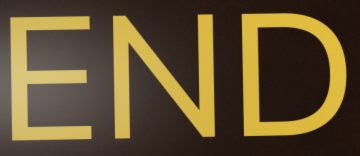
END